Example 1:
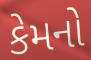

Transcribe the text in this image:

કેમનો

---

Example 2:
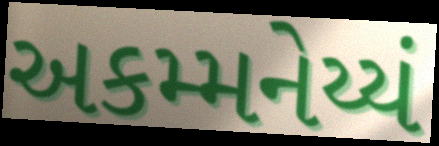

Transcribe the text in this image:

અકમ્મનેય્યં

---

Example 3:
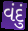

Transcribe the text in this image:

વંદું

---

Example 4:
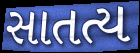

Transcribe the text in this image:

સાતત્ય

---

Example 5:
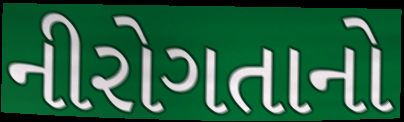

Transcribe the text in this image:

નીરોગતાનો